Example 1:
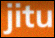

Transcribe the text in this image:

jitu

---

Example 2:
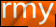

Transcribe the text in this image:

rmy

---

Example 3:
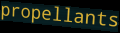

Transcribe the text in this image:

propellants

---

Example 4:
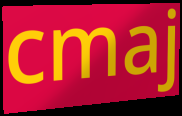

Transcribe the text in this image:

cmaj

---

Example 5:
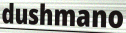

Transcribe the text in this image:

dushmano